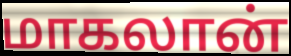
மாகலான்